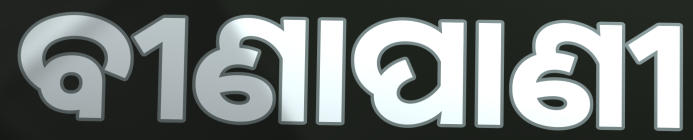
ବୀଣାପାଣୀ